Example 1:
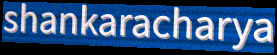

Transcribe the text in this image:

shankaracharya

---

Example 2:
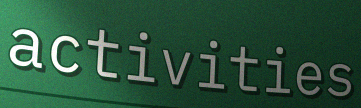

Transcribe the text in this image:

activities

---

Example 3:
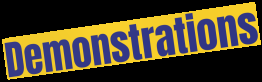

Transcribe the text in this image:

Demonstrations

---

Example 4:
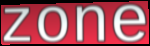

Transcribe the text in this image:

zone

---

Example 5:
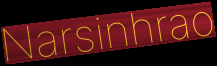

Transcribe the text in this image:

Narsinhrao